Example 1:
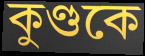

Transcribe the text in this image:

কুণ্ডকে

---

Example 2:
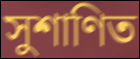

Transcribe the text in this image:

সুশাণিত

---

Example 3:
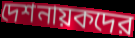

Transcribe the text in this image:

দেশনায়কদের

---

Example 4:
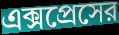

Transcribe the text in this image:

এক্সপ্রেসের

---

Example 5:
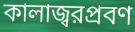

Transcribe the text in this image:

কালাজ্বরপ্রবণ